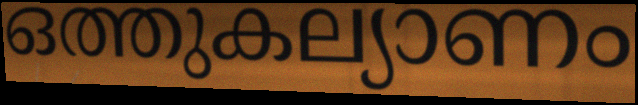
ഒത്തുകല്യാണം